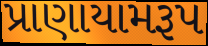
પ્રાણાયામરૂપ